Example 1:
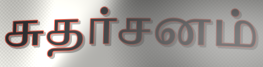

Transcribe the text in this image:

சுதர்சனம்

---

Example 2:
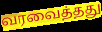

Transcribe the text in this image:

வரவைத்தது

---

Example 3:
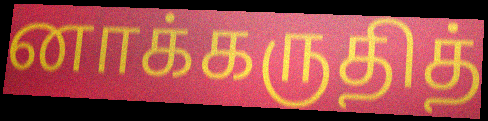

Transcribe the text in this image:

னாக்கருதித்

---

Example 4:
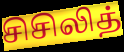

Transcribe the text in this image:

சிசிலித்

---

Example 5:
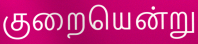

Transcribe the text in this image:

குறையென்று